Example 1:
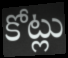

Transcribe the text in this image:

కోట్లు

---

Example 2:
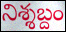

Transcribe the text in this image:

నిశ్శబ్దం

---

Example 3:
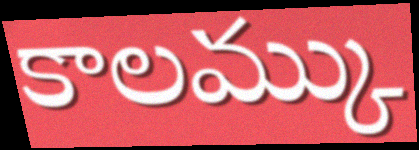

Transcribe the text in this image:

కాలమ్కు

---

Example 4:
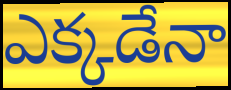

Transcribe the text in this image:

ఎక్కడేనా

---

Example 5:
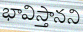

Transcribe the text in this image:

భావిస్తానని